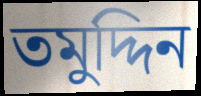
তমুদ্দিন